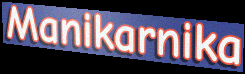
Manikarnika